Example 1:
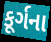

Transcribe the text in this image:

કૂર્ગના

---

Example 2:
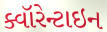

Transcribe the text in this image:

ક્વૉરેન્ટાઇન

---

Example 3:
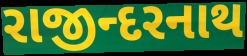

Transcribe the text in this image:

રાજીન્દરનાથ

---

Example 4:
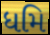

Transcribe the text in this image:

ધમિ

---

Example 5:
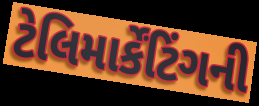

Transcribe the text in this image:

ટેલિમાર્કેંટિંગની